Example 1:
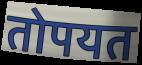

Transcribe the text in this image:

तोपयत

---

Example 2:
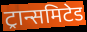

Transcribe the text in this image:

ट्रान्समिटेड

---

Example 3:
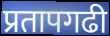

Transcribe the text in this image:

प्रतापगढी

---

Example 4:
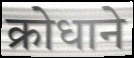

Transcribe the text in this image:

क्रोधाने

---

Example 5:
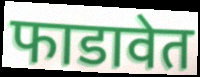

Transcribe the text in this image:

फाडावेत